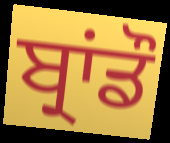
ਬ੍ਰਾਂਡੌ